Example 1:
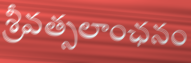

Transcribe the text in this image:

శ్రీవత్సలాంఛనం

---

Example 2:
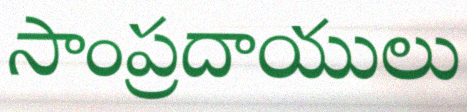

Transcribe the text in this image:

సాంప్రదాయులు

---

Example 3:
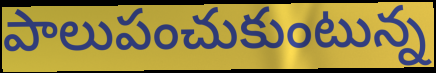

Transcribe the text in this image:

పాలుపంచుకుంటున్న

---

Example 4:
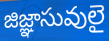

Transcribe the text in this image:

జిజ్ఞాసువులై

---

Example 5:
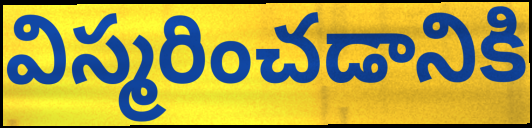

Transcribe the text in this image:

విస్మరించడానికి